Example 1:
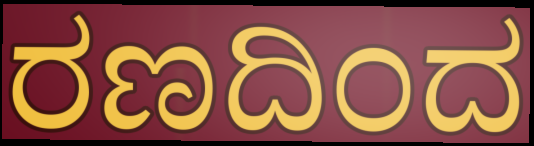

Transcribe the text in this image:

ರಣದಿಂದ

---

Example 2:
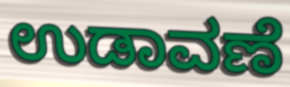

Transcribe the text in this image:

ಉಡಾವಣೆ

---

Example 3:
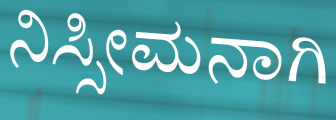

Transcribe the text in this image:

ನಿಸ್ಸೀಮನಾಗಿ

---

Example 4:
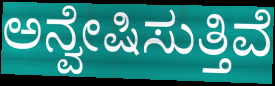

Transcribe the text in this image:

ಅನ್ವೇಷಿಸುತ್ತಿವೆ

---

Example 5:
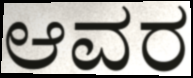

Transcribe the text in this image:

ಆವರ